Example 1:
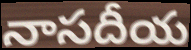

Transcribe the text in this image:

నాసదీయ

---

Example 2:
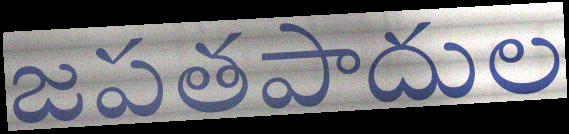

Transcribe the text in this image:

జపతపాదుల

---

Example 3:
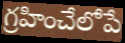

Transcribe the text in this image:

గ్రహించేలోపే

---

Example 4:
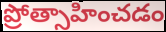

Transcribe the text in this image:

ప్రోత్సాహించడం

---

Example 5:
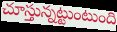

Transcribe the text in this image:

చూస్తున్నట్టుంటుంది